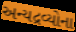
અન્યદ્રવ્યોના